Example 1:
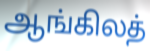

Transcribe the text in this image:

ஆங்கிலத்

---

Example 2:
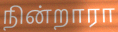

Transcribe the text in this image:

நின்றாரா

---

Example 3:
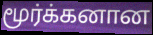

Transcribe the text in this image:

மூர்க்கனான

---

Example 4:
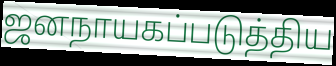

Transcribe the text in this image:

ஜனநாயகப்படுத்திய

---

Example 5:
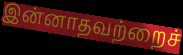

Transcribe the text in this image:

இன்னாதவற்றைச்